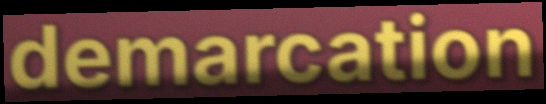
demarcation